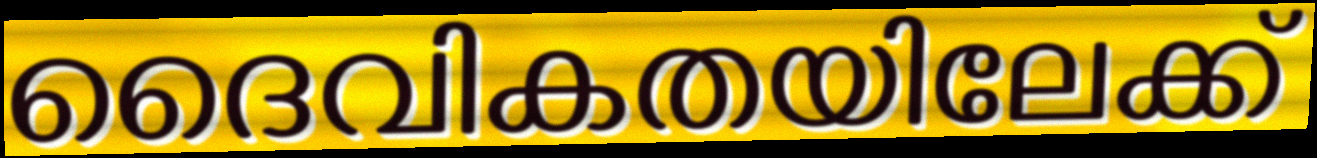
ദൈവികതയിലേക്ക്